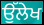
ਉੱਲੇਖ